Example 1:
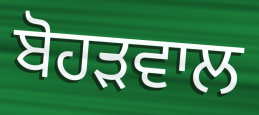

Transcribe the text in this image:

ਬੋਹੜਵਾਲ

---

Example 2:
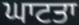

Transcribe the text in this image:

ਘਾਟਤਾ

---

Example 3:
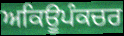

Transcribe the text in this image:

ਅਕਿਊਪੰਕਚਰ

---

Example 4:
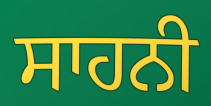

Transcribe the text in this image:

ਸਾਹਨੀ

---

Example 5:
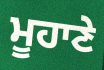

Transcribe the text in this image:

ਮੂਹਾਣੇ